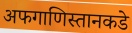
अफगाणिस्तानकडे